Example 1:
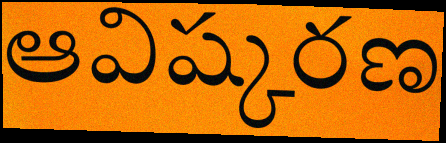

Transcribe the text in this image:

ఆవిష్కరణ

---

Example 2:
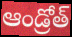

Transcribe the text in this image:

ఆండ్రోత్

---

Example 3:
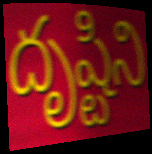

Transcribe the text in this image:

దృష్టిని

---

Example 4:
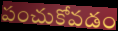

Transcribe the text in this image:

పంచుకోవడం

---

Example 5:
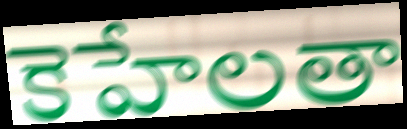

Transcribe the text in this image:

కెహేలతా